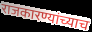
राजकारण्यांच्याच